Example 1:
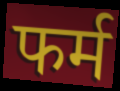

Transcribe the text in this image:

फर्म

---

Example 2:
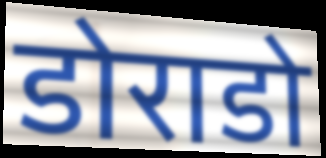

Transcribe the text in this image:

डोराडो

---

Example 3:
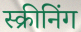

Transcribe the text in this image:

स्क्रीनिंग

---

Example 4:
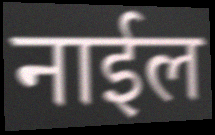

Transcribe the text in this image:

नाईल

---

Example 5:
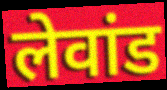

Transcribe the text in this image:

लेवांड